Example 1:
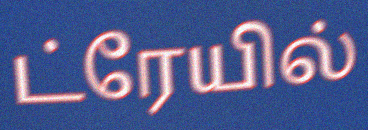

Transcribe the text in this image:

ட்ரேயில்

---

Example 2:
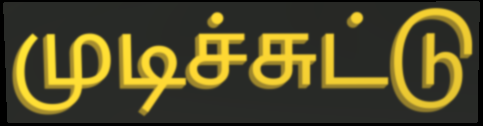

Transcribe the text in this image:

முடிச்சுட்டு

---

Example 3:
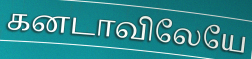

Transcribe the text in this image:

கனடாவிலேயே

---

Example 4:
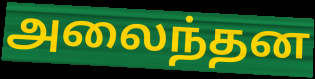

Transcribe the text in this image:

அலைந்தன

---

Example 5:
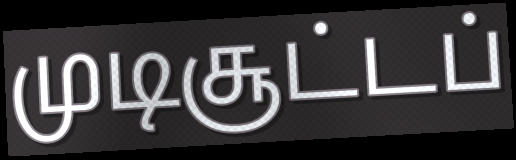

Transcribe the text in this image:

முடிசூட்டப்